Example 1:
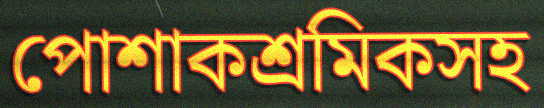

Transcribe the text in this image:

পোশাকশ্রমিকসহ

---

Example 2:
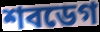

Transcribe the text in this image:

শবডেগ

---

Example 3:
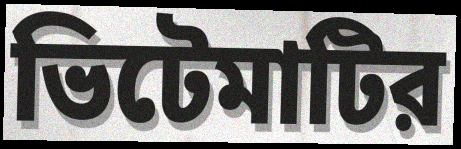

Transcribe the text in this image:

ভিটেমাটির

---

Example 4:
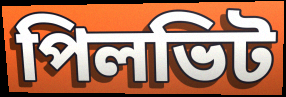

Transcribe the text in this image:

পিলভিট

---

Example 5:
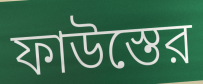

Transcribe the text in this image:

ফাউস্তের